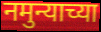
नमुन्याच्या